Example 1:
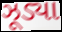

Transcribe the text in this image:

ઝૂડ્યા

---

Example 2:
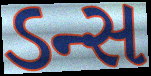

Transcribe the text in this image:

ડન્સ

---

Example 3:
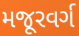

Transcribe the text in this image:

મજૂરવર્ગ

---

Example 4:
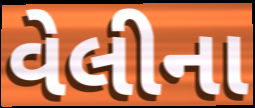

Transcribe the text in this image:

વેલીના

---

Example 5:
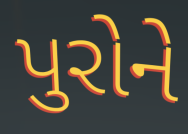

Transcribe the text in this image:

પુરોને